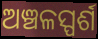
ଅଞ୍ଚଳସ୍ପର୍ଶ